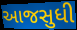
આજસુધી